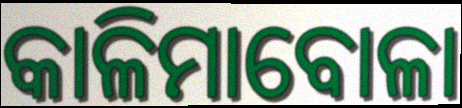
କାଳିମାବୋଳା